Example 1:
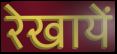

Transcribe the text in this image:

रेखायें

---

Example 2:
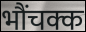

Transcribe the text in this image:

भौंचक्क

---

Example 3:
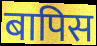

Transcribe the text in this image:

बापिस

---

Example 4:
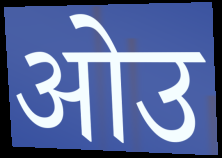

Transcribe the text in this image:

ओउ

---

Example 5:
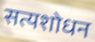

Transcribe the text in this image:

सत्यशोधन